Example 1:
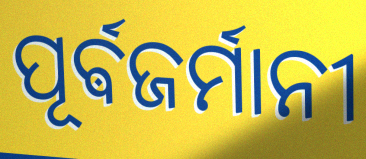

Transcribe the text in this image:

ପୂର୍ଵଜର୍ମାନୀ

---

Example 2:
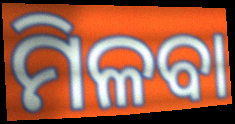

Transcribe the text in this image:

ମିଳବା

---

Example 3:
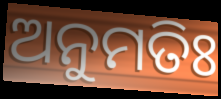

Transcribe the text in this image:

ଅନୁମତିଃ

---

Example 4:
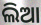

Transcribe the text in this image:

ଲିଆ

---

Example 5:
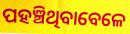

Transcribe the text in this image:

ପହଞ୍ଚିଥିବାବେଳେ